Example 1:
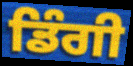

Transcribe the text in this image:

ਡਿੰਗੀ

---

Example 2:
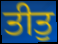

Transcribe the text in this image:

ਤੀਤੁ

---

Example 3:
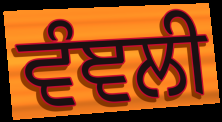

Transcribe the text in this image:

ਵੰਞਲੀ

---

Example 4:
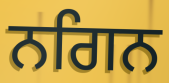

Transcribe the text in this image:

ਨਗਿਨ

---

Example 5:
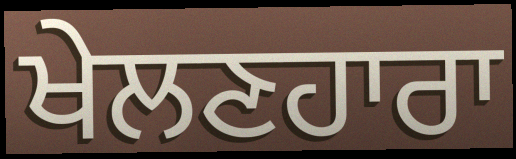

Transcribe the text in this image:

ਖੇਲਣਹਾਰਾ